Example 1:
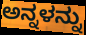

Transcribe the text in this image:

ಅನ್ನಳನ್ನು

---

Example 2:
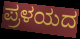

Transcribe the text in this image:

ಪ್ರಳಯದ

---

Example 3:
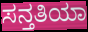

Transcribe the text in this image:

ಸನ್ತತಿಯಾ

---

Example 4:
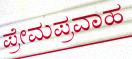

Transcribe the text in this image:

ಪ್ರೇಮಪ್ರವಾಹ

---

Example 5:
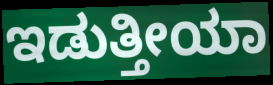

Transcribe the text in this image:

ಇಡುತ್ತೀಯಾ